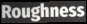
Roughness